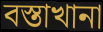
বস্তাখানা